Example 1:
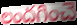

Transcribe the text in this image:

లందగించె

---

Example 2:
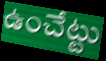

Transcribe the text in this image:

ఉంచేట్టు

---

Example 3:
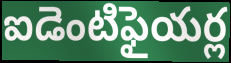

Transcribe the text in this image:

ఐడెంటిఫైయర్ల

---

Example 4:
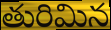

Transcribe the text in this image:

తురిమిన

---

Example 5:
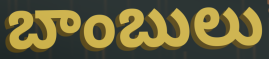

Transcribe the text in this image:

బాంబులు